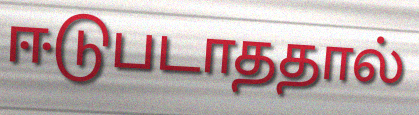
ஈடுபடாததால்